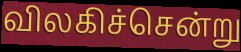
விலகிச்சென்று